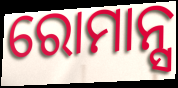
ରୋମାନ୍ସ